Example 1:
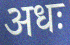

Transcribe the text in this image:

अधः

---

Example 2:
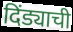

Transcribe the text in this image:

दिंड्याची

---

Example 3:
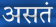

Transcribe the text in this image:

असतं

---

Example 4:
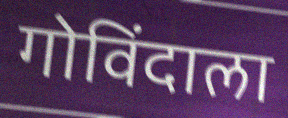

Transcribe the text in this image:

गोविंदाला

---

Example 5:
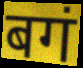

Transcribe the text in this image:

बगं